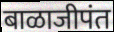
बाळाजीपंत